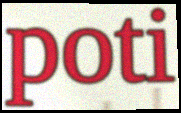
poti